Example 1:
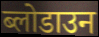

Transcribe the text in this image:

ब्लोडाउन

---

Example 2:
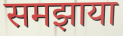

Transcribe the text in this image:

समझाया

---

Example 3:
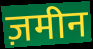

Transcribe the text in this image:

ज़मीन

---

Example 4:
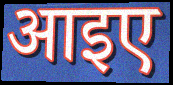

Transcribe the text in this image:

आइए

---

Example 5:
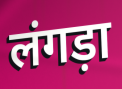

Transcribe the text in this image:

लंगड़ा